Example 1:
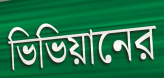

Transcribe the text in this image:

ভিভিয়ানের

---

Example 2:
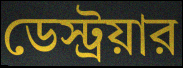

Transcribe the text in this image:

ডেস্ট্রয়ার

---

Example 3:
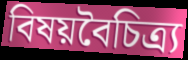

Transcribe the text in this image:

বিষয়বৈচিত্র্য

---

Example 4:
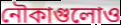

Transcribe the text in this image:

নৌকাগুলোও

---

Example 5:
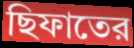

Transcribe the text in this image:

ছিফাতের